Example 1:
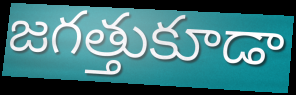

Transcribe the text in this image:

జగత్తుకూడా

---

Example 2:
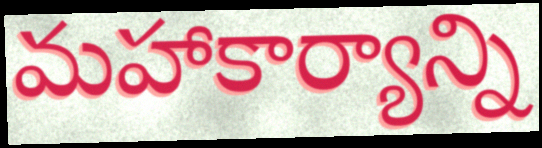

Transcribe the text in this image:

మహాకార్యాన్ని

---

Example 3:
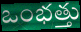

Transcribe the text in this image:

ఒంభత్తు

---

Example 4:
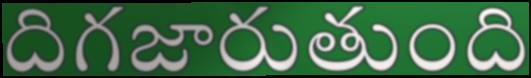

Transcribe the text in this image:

దిగజారుతుంది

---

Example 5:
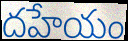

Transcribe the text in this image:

దహేయం